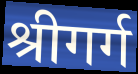
श्रीगर्ग